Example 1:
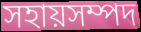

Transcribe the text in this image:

সহায়সম্পদ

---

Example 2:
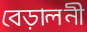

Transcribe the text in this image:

বেড়ালনী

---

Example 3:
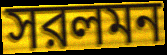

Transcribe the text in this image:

সরলমন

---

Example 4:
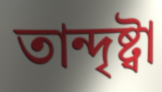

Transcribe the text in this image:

তান্দৃষ্ট্বা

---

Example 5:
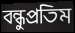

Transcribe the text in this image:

বন্ধুপ্রতিম